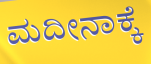
ಮದೀನಾಕ್ಕೆ